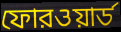
ফোরওয়ার্ড